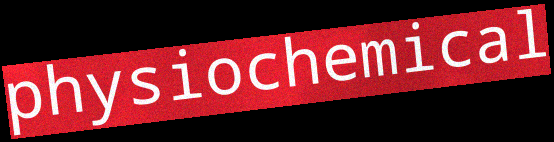
physiochemical